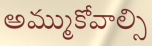
అమ్ముకోవాల్సి